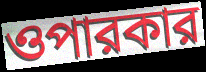
ওপারকার